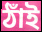
ঠাঁই